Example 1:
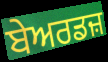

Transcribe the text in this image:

ਬੇਅਰਡਜ਼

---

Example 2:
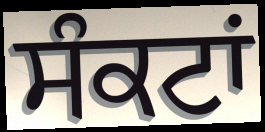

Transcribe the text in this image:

ਸੰਕਟਾਂ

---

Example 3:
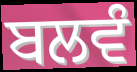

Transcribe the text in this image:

ਬਲਵੰ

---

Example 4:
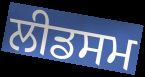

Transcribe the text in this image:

ਲੀਡਸਮ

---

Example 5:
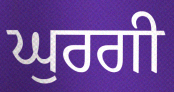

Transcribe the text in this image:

ਘੁਰਗੀ